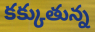
కక్కుతున్న